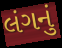
લંગનું